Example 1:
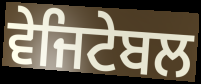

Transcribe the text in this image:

ਵੇਜਿਟੇਬਲ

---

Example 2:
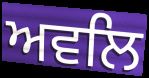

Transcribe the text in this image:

ਅਵਲਿ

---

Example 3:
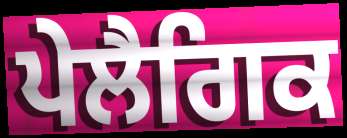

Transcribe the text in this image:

ਪੇਲੈਗਿਕ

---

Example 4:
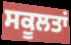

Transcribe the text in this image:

ਸਕੂਲਤਾਂ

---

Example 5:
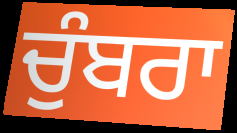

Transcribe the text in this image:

ਚੁੰਬਰਾ